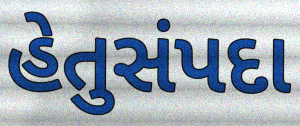
હેતુસંપદા